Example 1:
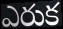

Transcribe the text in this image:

ఎరుక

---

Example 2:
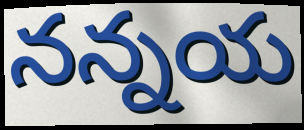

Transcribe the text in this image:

నన్నయ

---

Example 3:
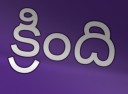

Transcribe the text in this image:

క్రింది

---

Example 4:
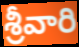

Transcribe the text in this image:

శ్రీవారి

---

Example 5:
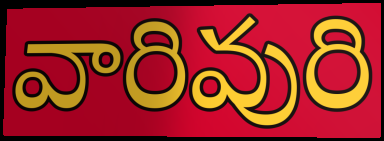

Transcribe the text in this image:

వారివురి